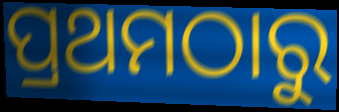
ପ୍ରଥମଠାରୁ